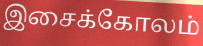
இசைக்கோலம்